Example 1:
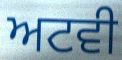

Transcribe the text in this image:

ਅਟਵੀ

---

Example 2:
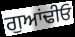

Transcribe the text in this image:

ਗੁਆਂਢੀਓ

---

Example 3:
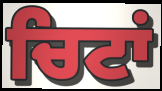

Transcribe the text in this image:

ਚਿਟਾਂ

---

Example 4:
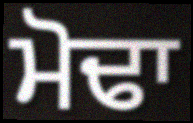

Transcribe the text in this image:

ਮੋਢਾ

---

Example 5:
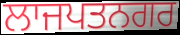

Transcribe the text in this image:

ਲਾਜਪਤਨਗਰ